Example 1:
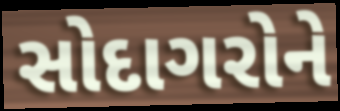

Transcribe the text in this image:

સોદાગરોને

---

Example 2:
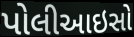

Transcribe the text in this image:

પોલીઆઇસો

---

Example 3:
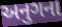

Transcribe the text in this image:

અનુગના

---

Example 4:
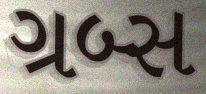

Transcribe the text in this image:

ગ્રબ્સ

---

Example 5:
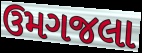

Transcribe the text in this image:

ઉમગજલા